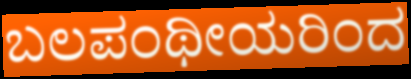
ಬಲಪಂಥೀಯರಿಂದ